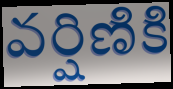
వర్షిణికి